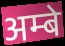
अम्बे